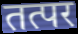
तत्‍पर